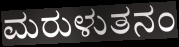
ಮರುಳುತನಂ